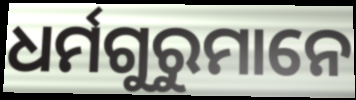
ଧର୍ମଗୁରୁମାନେ